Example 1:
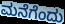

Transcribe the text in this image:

ಮನೆಗೆಂದು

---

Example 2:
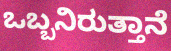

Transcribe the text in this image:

ಒಬ್ಬನಿರುತ್ತಾನೆ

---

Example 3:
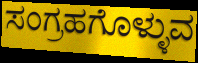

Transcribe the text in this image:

ಸಂಗ್ರಹಗೊಳ್ಳುವ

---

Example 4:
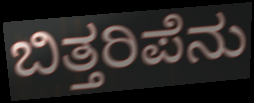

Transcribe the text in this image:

ಬಿತ್ತರಿಪೆನು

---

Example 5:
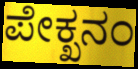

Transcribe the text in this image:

ಪೇಕ್ಖನಂ